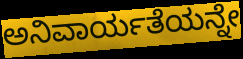
ಅನಿವಾರ್ಯತೆಯನ್ನೇ